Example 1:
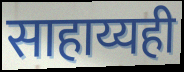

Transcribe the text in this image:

साहाय्यही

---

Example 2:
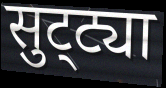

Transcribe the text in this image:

सुट्‌ट्या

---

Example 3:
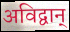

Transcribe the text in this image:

अविद्वान्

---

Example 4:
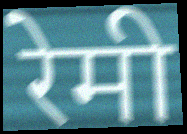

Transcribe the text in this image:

रेमी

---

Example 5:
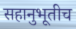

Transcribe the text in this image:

सहानुभूतीच